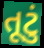
તૂટું